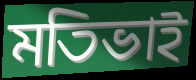
মতিভাই